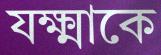
যক্ষ্মাকে